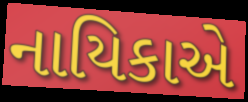
નાયિકાએ